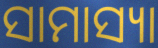
ସାମାସ୍ୟା